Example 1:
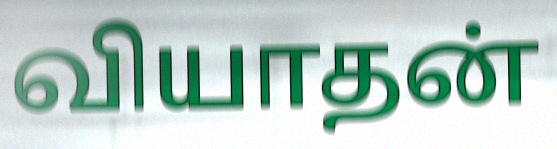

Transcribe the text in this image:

வியாதன்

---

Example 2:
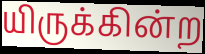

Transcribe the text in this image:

யிருக்கின்ற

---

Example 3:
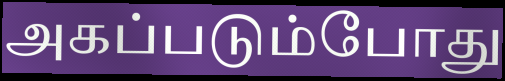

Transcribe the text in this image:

அகப்படும்போது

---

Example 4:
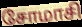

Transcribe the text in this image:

சோமாசி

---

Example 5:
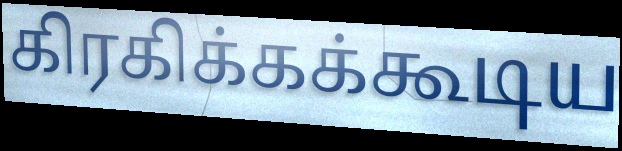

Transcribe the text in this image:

கிரகிக்கக்கூடிய